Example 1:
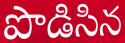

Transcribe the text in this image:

పొడిసిన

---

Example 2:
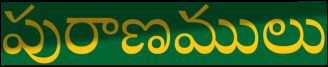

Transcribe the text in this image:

పురాణములు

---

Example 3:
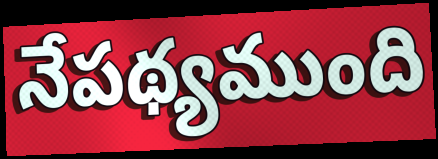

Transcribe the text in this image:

నేపథ్యముంది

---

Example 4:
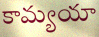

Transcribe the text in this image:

కామ్యయా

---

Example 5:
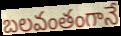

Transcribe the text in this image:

బలవంతంగానే